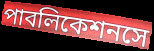
পাবলিকেশনসে